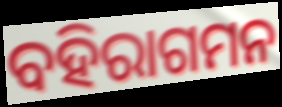
ବହିରାଗମନ